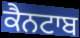
ਕੈਨਟਾਬ